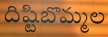
దిష్టిబొమ్మల